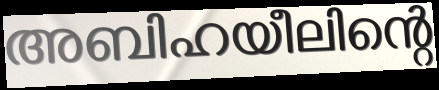
അബിഹയീലിന്റെ